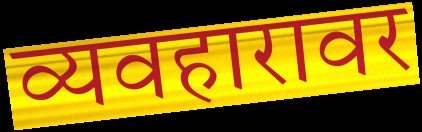
व्यवहारावर